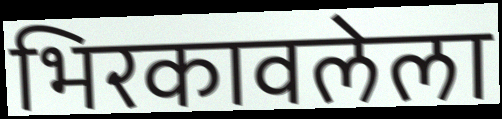
भिरकावलेला